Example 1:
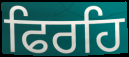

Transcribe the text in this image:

ਫਿਰਹਿ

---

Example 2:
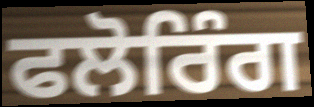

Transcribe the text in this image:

ਫਲੋਰਿੰਗ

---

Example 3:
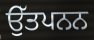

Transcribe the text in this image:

ਉੱਤਪਨਨ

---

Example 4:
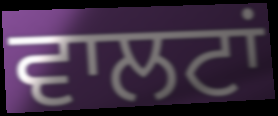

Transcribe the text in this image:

ਵਾਲਟਾਂ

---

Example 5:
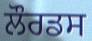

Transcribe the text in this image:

ਲੌਰਡਸ